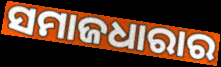
ସମାଜଧାରାର